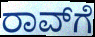
ರಾವ್‌ಗೆ